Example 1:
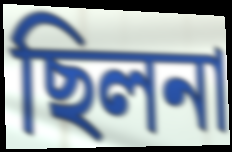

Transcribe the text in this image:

ছিলনা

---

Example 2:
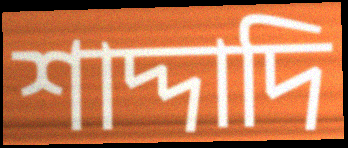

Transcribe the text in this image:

শাদ্দাদি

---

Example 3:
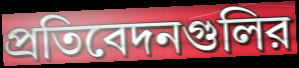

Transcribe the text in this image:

প্রতিবেদনগুলির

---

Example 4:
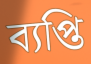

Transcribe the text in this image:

ব্যপ্তি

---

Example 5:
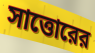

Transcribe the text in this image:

সাত্তোরের